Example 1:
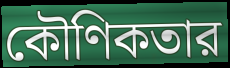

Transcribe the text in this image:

কৌণিকতার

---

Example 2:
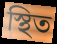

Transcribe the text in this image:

স্থিত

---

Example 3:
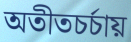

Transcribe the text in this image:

অতীতচর্চায়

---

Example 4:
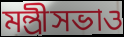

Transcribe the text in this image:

মন্ত্রীসভাও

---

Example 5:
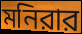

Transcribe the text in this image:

মনিরার